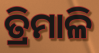
ତ୍ରିମାଳି